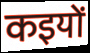
कइयों